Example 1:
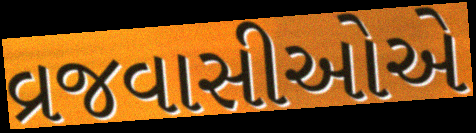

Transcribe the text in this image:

વ્રજવાસીઓએ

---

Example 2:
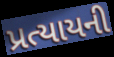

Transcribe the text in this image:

પ્રત્યાયની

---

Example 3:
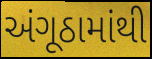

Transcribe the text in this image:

અંગૂઠામાંથી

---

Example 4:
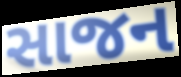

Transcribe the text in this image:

સાજન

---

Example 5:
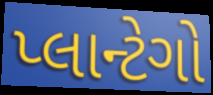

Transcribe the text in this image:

પ્લાન્ટેગો